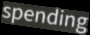
spending